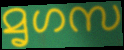
മൃഗസ